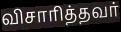
விசாரித்தவர்